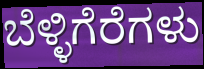
ಬೆಳ್ಳಿಗೆರೆಗಳು